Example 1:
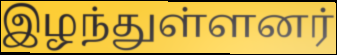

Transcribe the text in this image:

இழந்துள்ளனர்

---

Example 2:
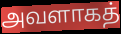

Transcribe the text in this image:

அவளாகத்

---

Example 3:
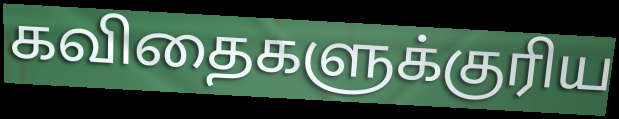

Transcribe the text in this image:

கவிதைகளுக்குரிய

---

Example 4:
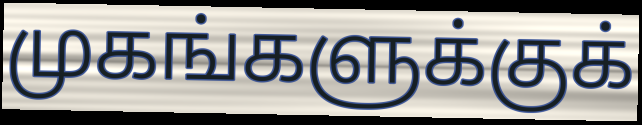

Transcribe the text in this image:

முகங்களுக்குக்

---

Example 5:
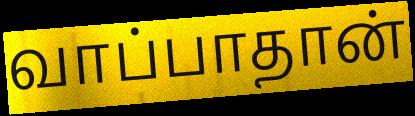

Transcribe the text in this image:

வாப்பாதான்